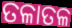
ତଳାତଳ